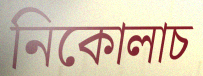
নিকোলাচ